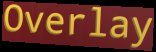
Overlay